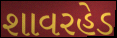
શાવરહેડ